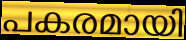
പകരമായി